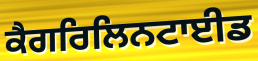
ਕੈਗਰਿਲਿਨਟਾਈਡ